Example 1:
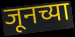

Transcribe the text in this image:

जूनच्या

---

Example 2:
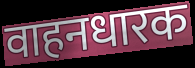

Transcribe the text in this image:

वाहनधारक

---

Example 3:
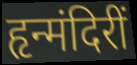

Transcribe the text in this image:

हृन्मंदिरीं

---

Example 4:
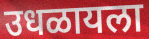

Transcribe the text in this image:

उधळायला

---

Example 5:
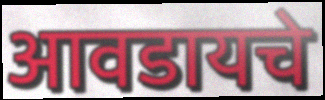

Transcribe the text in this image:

आवडायचे